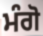
ਮੰਗੋ